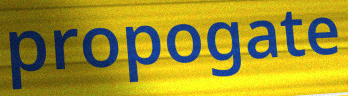
propogate